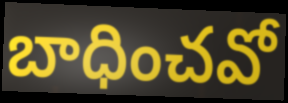
బాధించవో